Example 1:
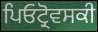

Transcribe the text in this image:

ਪਿਓਟ੍ਰੋਵਸਕੀ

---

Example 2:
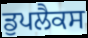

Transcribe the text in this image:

ਡੁਪਲੈਕਸ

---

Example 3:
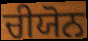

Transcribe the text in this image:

ਚੀਯੋਨ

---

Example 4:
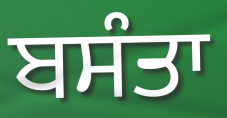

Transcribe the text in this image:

ਬਸੰਤਾ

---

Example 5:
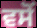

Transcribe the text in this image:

ਵਸੋਂ